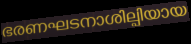
ഭരണഘടനാശില്പിയായ